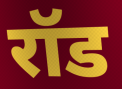
रॉड